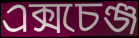
এক্সচেঞ্জ